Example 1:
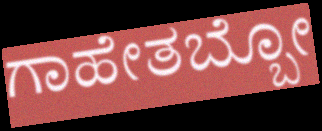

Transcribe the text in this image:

ಗಾಹೇತಬ್ಬೋ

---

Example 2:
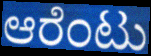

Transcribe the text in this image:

ಆರೆಂಟು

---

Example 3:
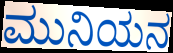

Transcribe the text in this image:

ಮುನಿಯನ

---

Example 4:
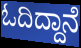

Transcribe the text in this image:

ಓದಿದ್ದಾನೆ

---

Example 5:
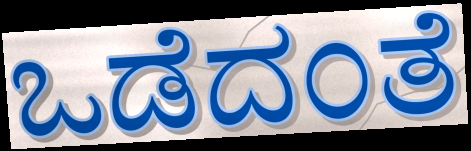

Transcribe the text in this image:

ಒಡೆದಂತೆ